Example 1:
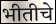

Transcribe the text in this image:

भीतीचे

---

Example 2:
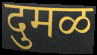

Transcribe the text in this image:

दुमळ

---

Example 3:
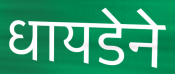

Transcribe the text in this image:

धायडेने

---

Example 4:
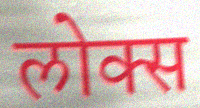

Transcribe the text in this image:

लोक्स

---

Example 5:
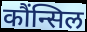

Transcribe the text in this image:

कौंन्सिल